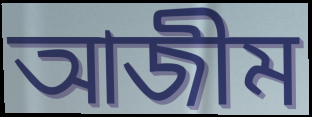
আজীম